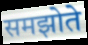
समझोते